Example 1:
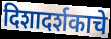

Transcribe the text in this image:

दिशादर्शकाचे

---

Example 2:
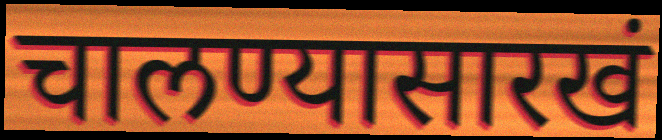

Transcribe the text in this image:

चालण्यासारखं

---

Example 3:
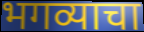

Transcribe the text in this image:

भगव्याचा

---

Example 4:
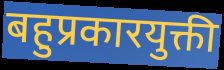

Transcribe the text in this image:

बहुप्रकारयुक्ती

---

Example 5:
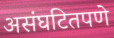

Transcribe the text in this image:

असंघटितपणे